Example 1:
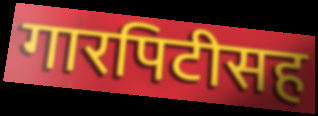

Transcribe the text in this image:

गारपिटीसह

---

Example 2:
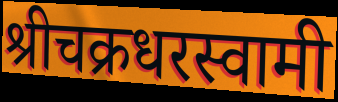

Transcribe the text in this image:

श्रीचक्रधरस्वामी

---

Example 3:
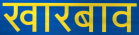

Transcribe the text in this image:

खारबाव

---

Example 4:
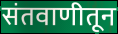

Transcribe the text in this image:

संतवाणीतून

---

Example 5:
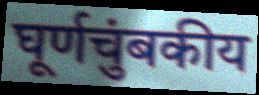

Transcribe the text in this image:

घूर्णचुंबकीय